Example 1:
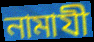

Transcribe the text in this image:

নামাযী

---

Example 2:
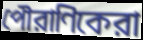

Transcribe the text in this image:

পৌরাণিকেরা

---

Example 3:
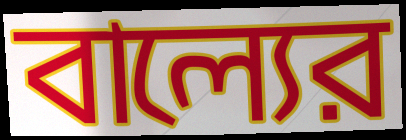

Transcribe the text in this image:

বাল্যের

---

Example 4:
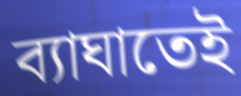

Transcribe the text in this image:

ব্যাঘাতেই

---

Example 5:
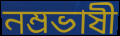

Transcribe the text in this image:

নম্রভাষী